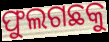
ଫୁଲଗଛକୁ